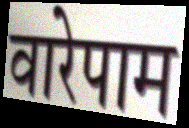
वारेपाम